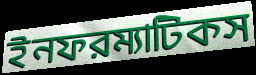
ইনফরম্যাটিকস